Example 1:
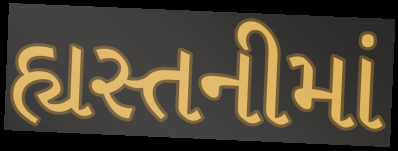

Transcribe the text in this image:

હ્યસ્તનીમાં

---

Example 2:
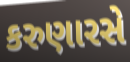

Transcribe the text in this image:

કરુણારસે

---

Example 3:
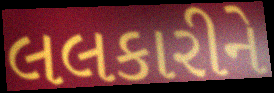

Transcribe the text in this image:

લલકારીને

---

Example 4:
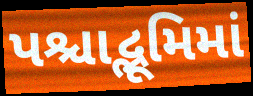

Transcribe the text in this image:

પશ્ચાદ્ભૂમિમાં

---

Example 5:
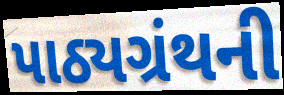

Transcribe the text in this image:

પાઠ્યગ્રંથની